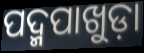
ପଦ୍ମପାଖୁଡ଼ା